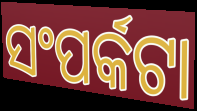
ସଂପର୍କଟା